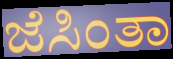
ಜೆಸಿಂತಾ